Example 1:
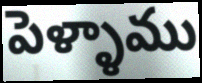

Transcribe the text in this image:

పెళ్ళాము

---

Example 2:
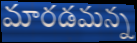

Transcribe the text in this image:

మారడమన్న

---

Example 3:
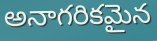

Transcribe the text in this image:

అనాగరికమైన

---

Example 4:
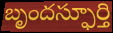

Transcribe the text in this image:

బృందస్ఫూర్తి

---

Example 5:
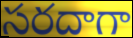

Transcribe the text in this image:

సరదాగా